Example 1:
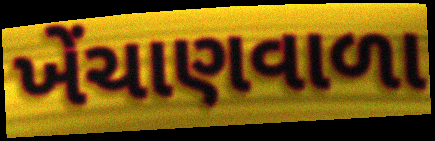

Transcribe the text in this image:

ખેંચાણવાળા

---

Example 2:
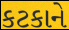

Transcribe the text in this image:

કટકાને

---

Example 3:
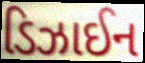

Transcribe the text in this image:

ડિઝાઈન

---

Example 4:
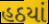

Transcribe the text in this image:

હઠયાં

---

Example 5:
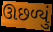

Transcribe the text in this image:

ઊછળ્યું